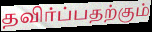
தவிர்ப்பதற்கும்